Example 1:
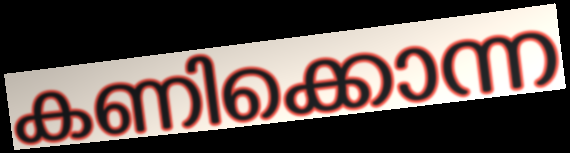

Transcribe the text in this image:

കണിക്കൊന്ന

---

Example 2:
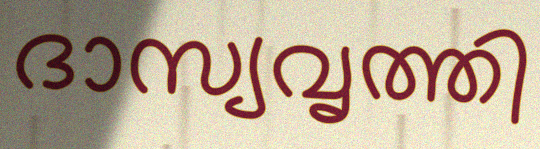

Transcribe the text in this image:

ദാസ്യവൃത്തി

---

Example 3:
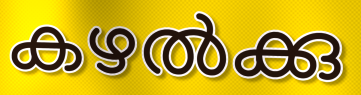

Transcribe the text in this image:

കഴൽക്കു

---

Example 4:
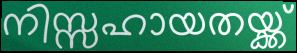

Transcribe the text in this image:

നിസ്സഹായതയ്ക്ക്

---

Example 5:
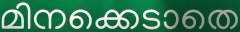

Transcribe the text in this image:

മിനക്കെടാതെ